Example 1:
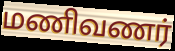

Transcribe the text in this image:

மணிவணர்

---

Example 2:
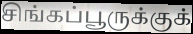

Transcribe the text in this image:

சிங்கப்பூருக்குக்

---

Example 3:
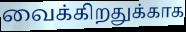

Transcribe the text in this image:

வைக்கிறதுக்காக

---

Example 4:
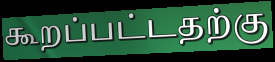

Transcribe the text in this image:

கூறப்பட்டதற்கு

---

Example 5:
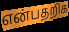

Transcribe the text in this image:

என்பதறிக